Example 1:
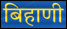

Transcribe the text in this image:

बिहाणी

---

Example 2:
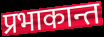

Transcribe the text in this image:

प्रभाकान्त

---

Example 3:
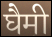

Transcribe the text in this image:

घैमी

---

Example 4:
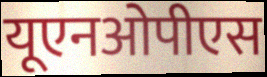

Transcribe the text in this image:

यूएनओपीएस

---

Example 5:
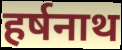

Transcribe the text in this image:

हर्षनाथ